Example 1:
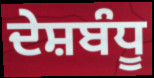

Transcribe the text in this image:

ਦੇਸ਼ਬੰਧੂ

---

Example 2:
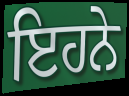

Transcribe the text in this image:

ਇਹਨੇ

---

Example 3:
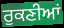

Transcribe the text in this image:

ਰੁਕਣੀਆਂ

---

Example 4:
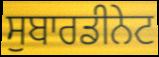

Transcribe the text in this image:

ਸੁਬਾਰਡੀਨੇਟ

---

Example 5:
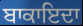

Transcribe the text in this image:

ਬਾਕਾਇਦਾ